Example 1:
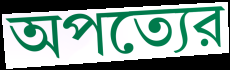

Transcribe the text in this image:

অপত্যের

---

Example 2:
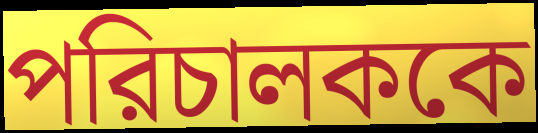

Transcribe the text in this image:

পরিচালককে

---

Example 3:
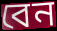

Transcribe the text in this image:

বেন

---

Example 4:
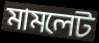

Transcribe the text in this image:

মামলেট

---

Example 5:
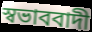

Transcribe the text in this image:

স্বভাববাদী